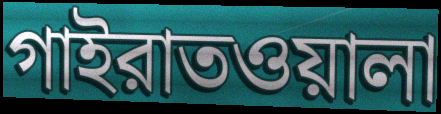
গাইরাতওয়ালা